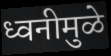
ध्वनीमुळे